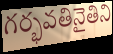
గర్భవతినైతిని